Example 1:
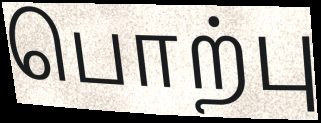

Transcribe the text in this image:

பொற்பு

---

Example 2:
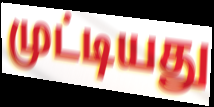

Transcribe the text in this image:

முட்டியது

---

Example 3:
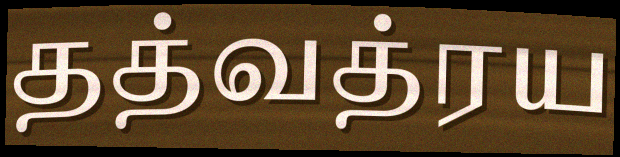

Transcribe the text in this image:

தத்வத்ரய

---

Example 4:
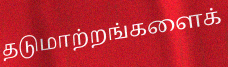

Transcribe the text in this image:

தடுமாற்றங்களைக்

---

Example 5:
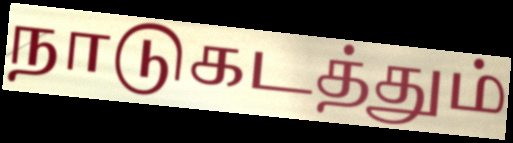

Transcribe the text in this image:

நாடுகடத்தும்